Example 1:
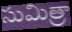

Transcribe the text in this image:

సుమిత్రా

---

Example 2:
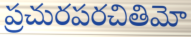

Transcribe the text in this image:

ప్రచురపరచితిమో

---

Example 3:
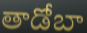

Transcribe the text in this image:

తాడోబా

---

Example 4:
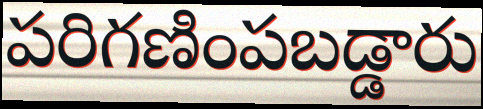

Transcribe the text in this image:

పరిగణింపబడ్డారు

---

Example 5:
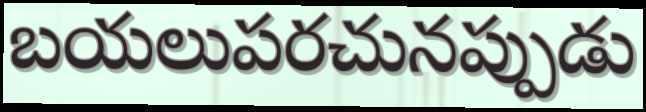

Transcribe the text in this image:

బయలుపరచునప్పుడు